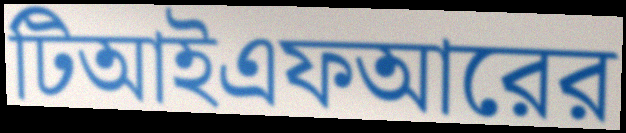
টিআইএফআরের